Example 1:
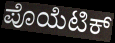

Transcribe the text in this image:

ಪೊಯೆಟಿಕ್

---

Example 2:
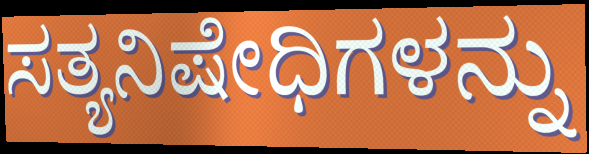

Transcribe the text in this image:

ಸತ್ಯನಿಷೇಧಿಗಳನ್ನು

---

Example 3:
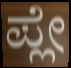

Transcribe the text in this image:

ಪ್ಲೇ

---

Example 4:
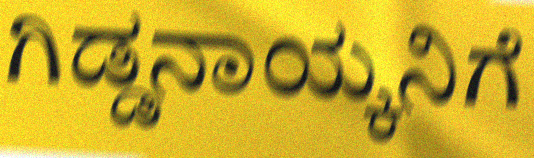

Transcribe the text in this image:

ಗಿಡ್ಡನಾಯ್ಕನಿಗೆ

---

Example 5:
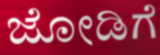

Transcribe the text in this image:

ಜೋಡಿಗೆ